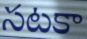
సటకా